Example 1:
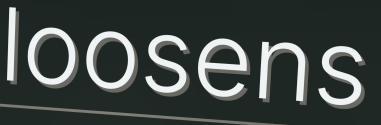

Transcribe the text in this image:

loosens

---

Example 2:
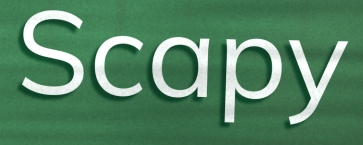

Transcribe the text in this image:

Scapy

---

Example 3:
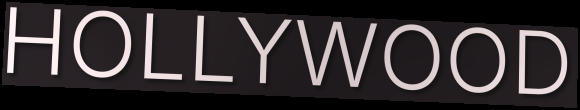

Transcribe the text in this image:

HOLLYWOOD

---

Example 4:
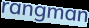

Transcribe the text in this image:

rangman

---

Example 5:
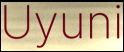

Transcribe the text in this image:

Uyuni